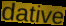
dative